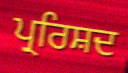
ਪ੍ਰਰਿਸ਼ਦ